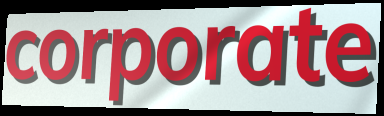
corporate